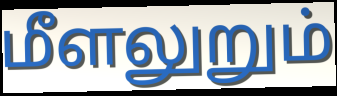
மீளலுறும்